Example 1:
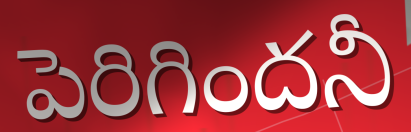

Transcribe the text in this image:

పెరిగిందనీ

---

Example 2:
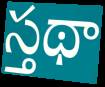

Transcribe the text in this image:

స్తథా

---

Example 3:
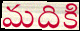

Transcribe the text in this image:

మదికి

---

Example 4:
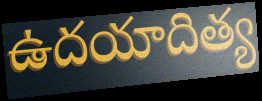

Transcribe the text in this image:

ఉదయాదిత్య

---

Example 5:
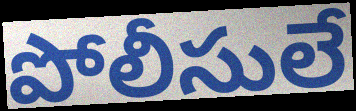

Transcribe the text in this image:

పోలీసులే